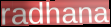
radhana